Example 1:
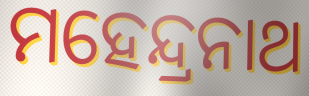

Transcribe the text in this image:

ମହେନ୍ଦ୍ରନାଥ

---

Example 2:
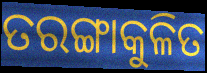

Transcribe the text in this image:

ତରଙ୍ଗାକୁଳିତ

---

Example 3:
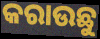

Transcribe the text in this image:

କରାଉଛୁ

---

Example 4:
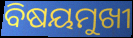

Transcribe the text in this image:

ବିଷୟମୁଖୀ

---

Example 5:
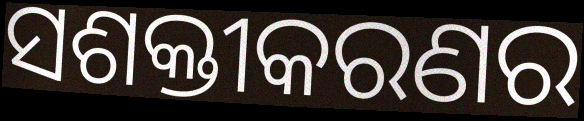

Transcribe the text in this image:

ସଶକ୍ତୀକରଣର